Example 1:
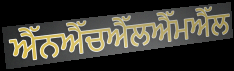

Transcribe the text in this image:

ਐੱਨਐੱਚਐੱਲਐੱਮਐੱਲ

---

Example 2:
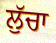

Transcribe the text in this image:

ਲੁੱਚਾ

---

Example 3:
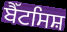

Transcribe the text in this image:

ਬੈੱਟਸਿਸ਼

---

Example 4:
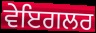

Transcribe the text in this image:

ਵੇਇਗਲਰ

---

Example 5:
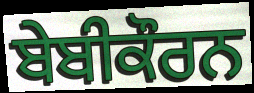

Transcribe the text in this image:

ਬੇਬੀਕੌਰਨ